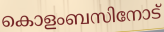
കൊളംബസിനോട്